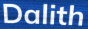
Dalith